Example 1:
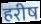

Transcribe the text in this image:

हरीष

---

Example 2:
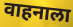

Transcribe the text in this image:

वाहनाला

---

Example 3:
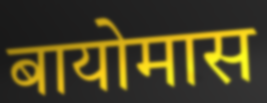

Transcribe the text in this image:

बायोमास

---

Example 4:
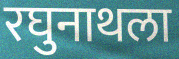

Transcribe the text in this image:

रघुनाथला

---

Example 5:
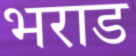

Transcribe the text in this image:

भराड